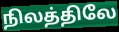
நிலத்திலே